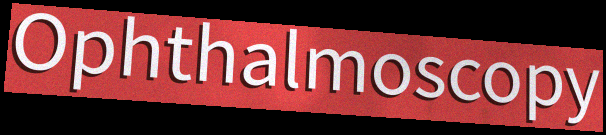
Ophthalmoscopy